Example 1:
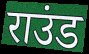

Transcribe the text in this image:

राउंड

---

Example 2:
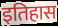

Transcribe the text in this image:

इतिहास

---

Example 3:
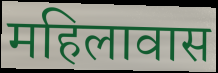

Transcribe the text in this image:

महिलावास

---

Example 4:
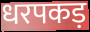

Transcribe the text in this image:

धरपकड़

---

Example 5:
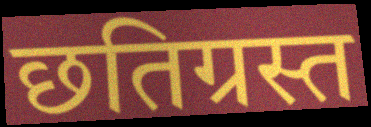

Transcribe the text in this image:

छतिग्रस्त